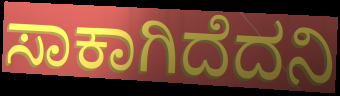
ಸಾಕಾಗಿದೆದನಿ